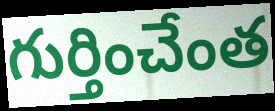
గుర్తించేంత